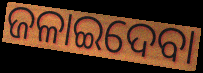
ଜଳାଇଦେବା